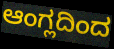
ಆಂಗ್ಲದಿಂದ